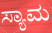
ಸ್ಯಾಮ